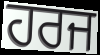
ਹਰਜ